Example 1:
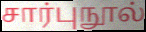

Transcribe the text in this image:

சார்புநூல்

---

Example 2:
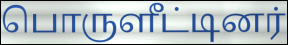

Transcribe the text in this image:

பொருளீட்டினர்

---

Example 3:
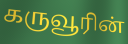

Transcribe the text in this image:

கருவூரின்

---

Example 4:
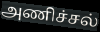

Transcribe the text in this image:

அணிச்சல்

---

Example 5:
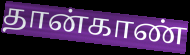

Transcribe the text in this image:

தான்காண்